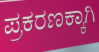
ಪ್ರಕರಣಕ್ಕಾಗಿ